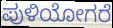
ಪುಳಿಯೋಗರೆ